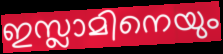
ഇസ്ലാമിനെയും